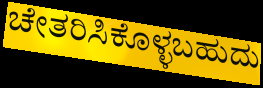
ಚೇತರಿಸಿಕೊಳ್ಳಬಹುದು